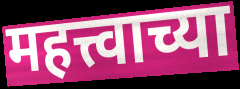
महत्त्वाच्या